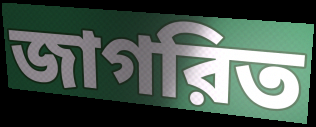
জাগরিত